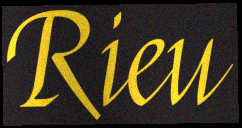
Rieu